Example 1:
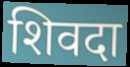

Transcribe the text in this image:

शिवदा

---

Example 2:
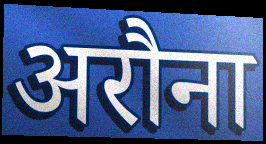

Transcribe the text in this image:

अरौना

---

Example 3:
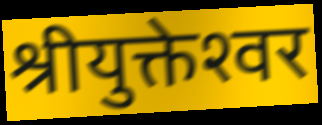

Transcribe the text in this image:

श्रीयुक्तेश्वर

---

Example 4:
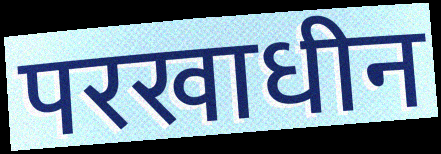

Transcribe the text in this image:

परखाधीन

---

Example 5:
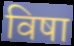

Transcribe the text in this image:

विषा